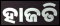
ହାଜତି